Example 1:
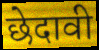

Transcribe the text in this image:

छेदावी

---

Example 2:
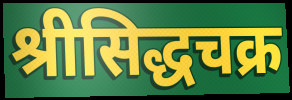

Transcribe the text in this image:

श्रीसिद्धचक्र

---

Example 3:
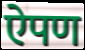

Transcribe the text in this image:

ऐपण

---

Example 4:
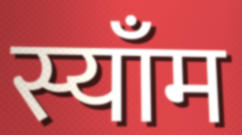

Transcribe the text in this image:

स्याँम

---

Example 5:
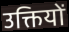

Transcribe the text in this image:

उक्तियों